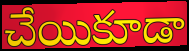
చేయికూడా